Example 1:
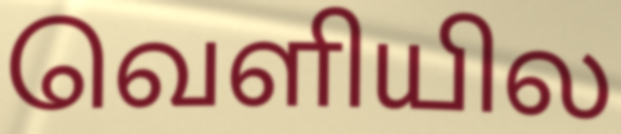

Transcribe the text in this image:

வெளியில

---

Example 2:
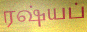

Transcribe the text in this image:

ரஷ்யப்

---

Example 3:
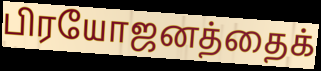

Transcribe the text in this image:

பிரயோஜனத்தைக்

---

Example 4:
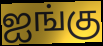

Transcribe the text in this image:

ஐங்கு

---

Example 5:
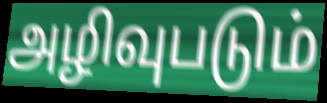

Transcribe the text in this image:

அழிவுபடும்